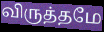
விருத்தமே